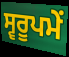
ਸ੍ਵਰੂਪਮੇਂ